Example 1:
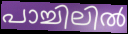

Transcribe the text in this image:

പാച്ചിലിൽ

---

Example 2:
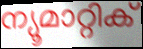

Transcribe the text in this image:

ന്യൂമാറ്റിക്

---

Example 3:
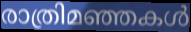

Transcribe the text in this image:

രാത്രിമഞ്ഞകൾ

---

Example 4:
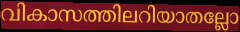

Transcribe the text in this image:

വികാസത്തിലറിയാതല്ലോ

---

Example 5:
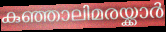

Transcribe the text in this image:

കുഞ്ഞാലിമരയ്ക്കാർ